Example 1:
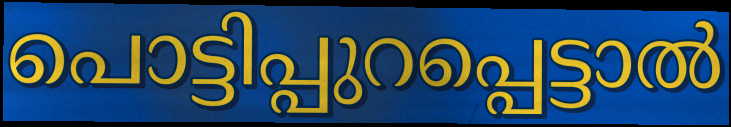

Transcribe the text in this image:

പൊട്ടിപ്പുറപ്പെട്ടാൽ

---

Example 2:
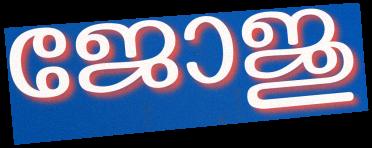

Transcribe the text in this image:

ജോജു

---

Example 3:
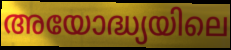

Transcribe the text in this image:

അയോദ്ധ്യയിലെ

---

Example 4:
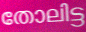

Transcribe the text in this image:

തോലിട്ട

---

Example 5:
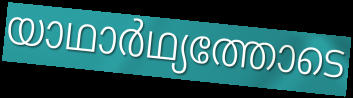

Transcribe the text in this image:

യാഥാർഥ്യത്തോടെ